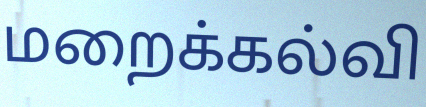
மறைக்கல்வி